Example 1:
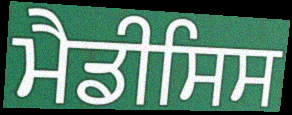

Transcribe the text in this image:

ਮੈਡੀਸਿਸ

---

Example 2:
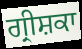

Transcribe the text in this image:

ਗ੍ਰੀਸ਼ਕਾ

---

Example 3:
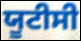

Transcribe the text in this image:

ਯੂਟੀਸੀ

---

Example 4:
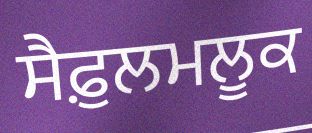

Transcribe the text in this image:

ਸੈਫ਼ੁਲਮਲੂਕ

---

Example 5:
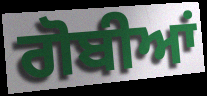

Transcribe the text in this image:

ਗੋਬੀਆਂ